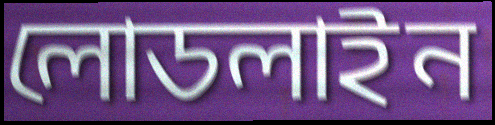
লোডলাইন